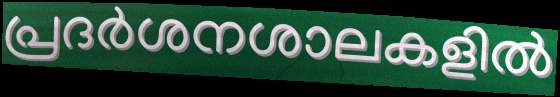
പ്രദർശനശാലകളിൽ